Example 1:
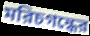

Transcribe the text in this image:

মরিচগন্ধের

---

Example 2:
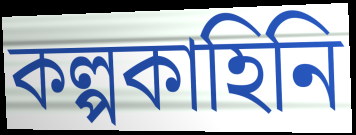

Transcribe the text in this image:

কল্পকাহিনি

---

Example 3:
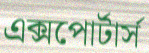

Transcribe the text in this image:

এক্সপোর্টার্স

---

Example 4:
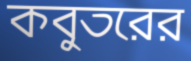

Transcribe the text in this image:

কবুতরের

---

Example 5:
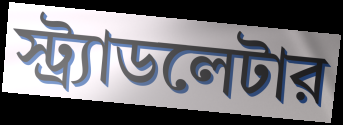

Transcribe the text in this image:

স্ট্র্যাডলেটার